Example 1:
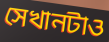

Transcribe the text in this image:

সেখানটাও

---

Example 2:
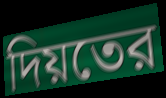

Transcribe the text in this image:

দিয়তের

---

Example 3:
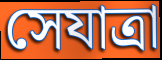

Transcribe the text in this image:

সেযাত্রা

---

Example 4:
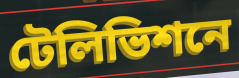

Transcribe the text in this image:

টেলিভিশনে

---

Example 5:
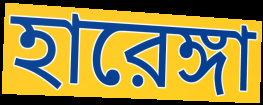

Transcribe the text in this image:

হারেঙ্গা